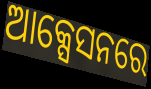
ଆକ୍ସେସନରେ